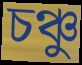
চঞ্চু